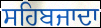
ਸਹਿਬਜਾਦਾ